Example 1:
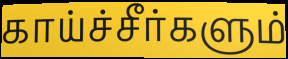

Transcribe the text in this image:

காய்ச்சீர்களும்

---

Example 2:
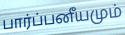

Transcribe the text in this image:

பார்ப்பனீயமும்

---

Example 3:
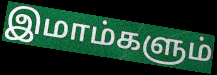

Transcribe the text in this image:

இமாம்களும்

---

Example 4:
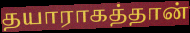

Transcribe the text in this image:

தயாராகத்தான்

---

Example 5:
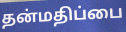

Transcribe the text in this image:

தன்மதிப்பை